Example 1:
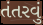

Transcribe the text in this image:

તંતરવું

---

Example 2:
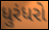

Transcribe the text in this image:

ધુરંધરો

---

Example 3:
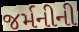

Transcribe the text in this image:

જર્મનીની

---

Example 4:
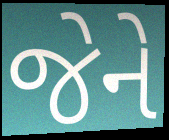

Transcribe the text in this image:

જેને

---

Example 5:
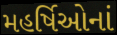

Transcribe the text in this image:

મહર્ષિઓનાં